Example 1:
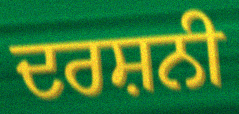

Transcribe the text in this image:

ਦਰਸ਼ਨੀ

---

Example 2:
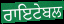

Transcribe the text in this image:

ਰਾਇਟੇਬਲ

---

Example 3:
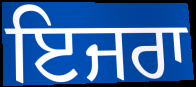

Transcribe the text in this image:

ਇਜਰਾ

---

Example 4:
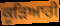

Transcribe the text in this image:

ਕੂੜਿਆਰੀ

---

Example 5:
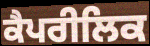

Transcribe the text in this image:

ਕੈਪਰੀਲਿਕ